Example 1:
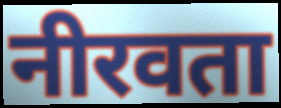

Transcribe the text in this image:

नीरवता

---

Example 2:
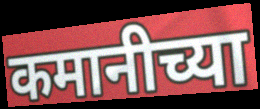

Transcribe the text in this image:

कमानीच्या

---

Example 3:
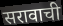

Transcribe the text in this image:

सरावाची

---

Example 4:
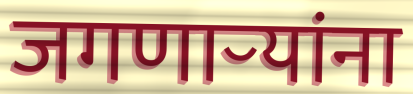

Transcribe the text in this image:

जगणाऱ्यांना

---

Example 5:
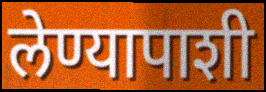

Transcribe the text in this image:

लेण्यापाशी